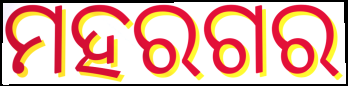
ମହରଗର